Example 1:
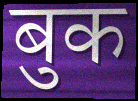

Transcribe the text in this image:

बुक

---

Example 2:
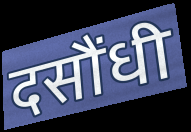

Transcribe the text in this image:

दसौंधी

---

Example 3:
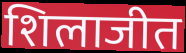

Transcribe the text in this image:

शिलाजीत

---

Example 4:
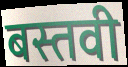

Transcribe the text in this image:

बस्तवी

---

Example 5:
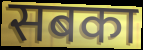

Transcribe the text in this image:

सबका